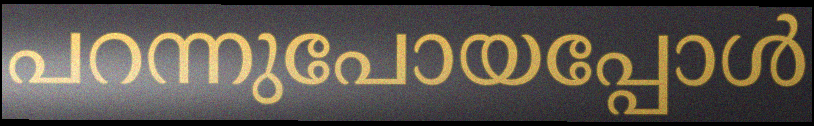
പറന്നുപോയപ്പോൾ